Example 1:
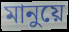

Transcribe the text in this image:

মানুয়ে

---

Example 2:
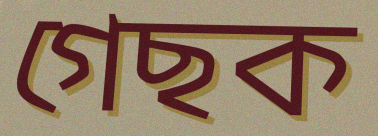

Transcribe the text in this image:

গেছক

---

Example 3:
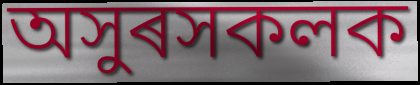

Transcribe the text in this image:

অসুৰসকলক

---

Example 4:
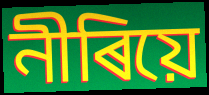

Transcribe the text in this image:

নীৰিয়ে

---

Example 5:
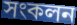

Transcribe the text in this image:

সংকলন